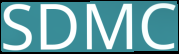
SDMC